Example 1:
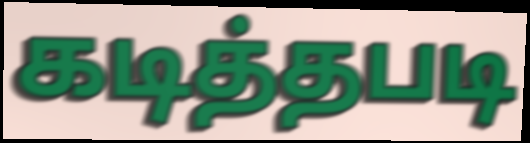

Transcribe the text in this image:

கடித்தபடி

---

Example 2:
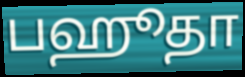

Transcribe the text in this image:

பஹூதா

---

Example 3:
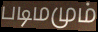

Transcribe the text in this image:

படிமமும்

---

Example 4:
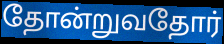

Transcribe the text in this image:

தோன்றுவதோர்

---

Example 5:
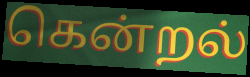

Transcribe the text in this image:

கென்றல்